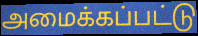
அமைக்கப்பட்டு